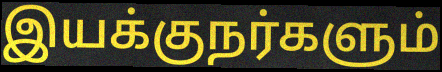
இயக்குநர்களும்